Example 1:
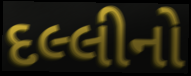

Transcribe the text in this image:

દલ્લીનો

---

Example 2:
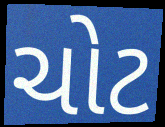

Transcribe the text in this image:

ચોટ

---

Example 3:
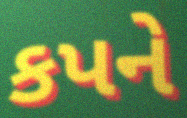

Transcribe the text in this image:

કપને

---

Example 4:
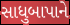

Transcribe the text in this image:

સાધુબાપાને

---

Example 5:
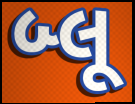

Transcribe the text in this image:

બ્લૂ